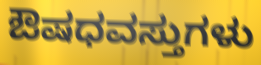
ಔಷಧವಸ್ತುಗಳು